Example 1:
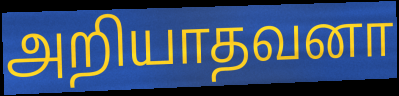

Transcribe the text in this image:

அறியாதவனா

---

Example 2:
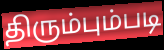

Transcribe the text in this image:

திரும்பும்படி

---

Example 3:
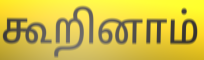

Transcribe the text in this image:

கூறினாம்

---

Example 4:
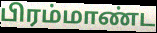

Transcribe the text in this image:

பிரம்மாண்ட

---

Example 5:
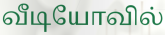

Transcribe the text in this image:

வீடியோவில்